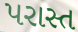
પરાસ્ત